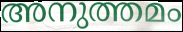
അനുത്തമം